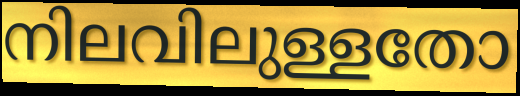
നിലവിലുള്ളതോ